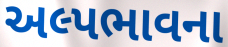
અલ્પભાવના